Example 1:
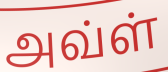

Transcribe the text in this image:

அவ்ள்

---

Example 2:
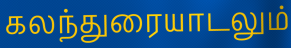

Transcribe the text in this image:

கலந்துரையாடலும்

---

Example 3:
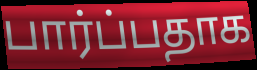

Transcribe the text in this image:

பார்ப்பதாக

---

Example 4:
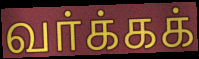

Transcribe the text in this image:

வர்க்கக்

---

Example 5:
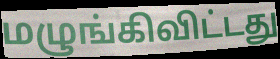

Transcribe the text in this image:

மழுங்கிவிட்டது